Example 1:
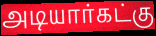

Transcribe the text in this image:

அடியார்கட்கு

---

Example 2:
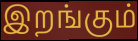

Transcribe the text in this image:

இறங்கும்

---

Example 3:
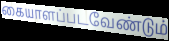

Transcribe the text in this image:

கையாளப்படவேண்டும்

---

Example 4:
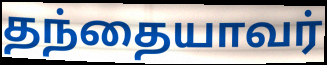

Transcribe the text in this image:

தந்தையாவர்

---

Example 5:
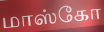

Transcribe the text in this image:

மாஸ்கோ